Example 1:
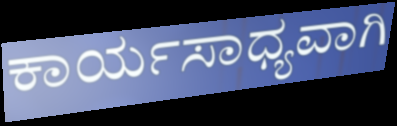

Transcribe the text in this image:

ಕಾರ್ಯಸಾಧ್ಯವಾಗಿ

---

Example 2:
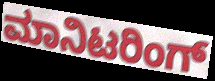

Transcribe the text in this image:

ಮಾನಿಟರಿಂಗ್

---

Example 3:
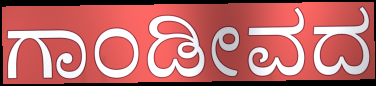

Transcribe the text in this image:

ಗಾಂಡೀವದ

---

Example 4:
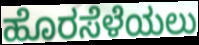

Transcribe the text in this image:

ಹೊರಸೆಳೆಯಲು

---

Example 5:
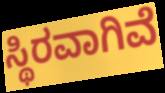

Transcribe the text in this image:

ಸ್ಥಿರವಾಗಿವೆ